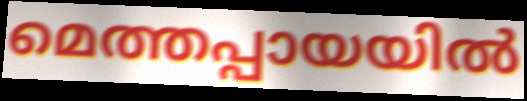
മെത്തപ്പായയിൽ